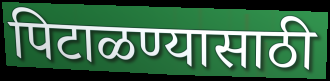
पिटाळण्यासाठी